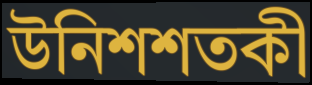
উনিশশতকী